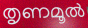
തൃണമൂൽ